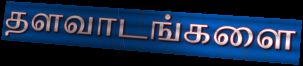
தளவாடங்களை